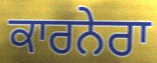
ਕਾਰਨੇਰਾ